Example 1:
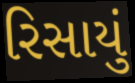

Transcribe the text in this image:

રિસાયું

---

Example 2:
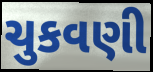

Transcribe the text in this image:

ચુકવણી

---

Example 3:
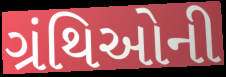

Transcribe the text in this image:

ગ્રંથિઓની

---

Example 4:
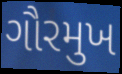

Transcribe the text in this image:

ગૌરમુખ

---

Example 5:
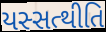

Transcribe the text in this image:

યસ્સત્થીતિ